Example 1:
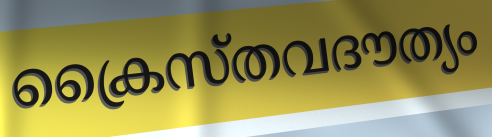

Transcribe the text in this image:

ക്രൈസ്തവദൗത്യം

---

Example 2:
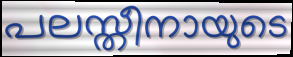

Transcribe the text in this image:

പലസ്തീനായുടെ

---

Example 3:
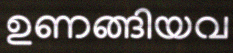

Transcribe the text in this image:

ഉണങ്ങിയവ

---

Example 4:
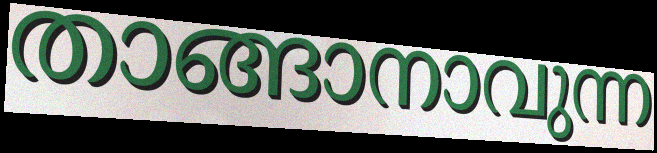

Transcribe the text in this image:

താങ്ങാനാവുന്ന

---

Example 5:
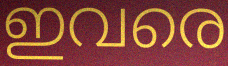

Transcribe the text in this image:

ഇവരെ